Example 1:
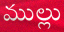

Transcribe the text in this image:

ముల్లు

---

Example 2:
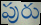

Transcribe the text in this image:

పురు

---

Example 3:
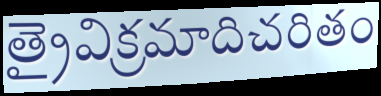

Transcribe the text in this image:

త్రైవిక్రమాదిచరితం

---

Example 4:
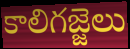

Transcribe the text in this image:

కాలిగజ్జెలు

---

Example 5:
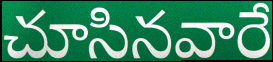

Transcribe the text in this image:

చూసినవారే